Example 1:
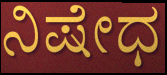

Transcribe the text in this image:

ನಿಷೇಧ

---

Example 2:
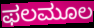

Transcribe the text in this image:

ಫಲಮೂಲ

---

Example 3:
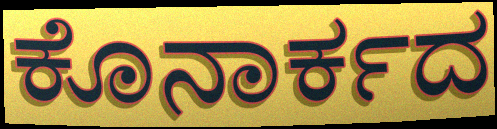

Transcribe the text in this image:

ಕೊನಾರ್ಕದ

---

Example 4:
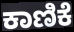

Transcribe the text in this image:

ಕಾಣಿಕೆ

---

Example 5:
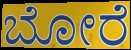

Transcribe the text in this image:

ಬೋರೆ